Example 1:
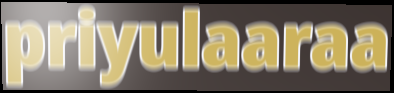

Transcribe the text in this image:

priyulaaraa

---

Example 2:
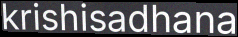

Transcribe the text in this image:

krishisadhana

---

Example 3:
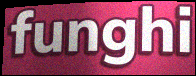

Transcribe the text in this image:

funghi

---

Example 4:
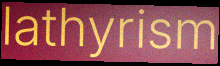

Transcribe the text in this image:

lathyrism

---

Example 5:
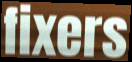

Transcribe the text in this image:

fixers